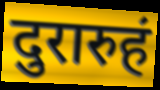
दुरारुहं